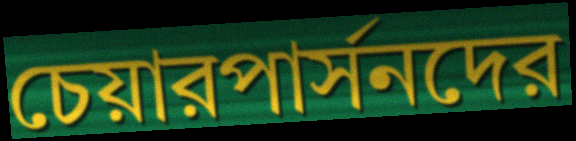
চেয়ারপার্সনদের